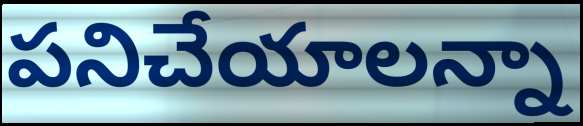
పనిచేయాలన్నా